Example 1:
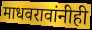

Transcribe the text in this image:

माधवरावांनीही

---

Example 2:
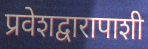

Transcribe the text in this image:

प्रवेशद्वारापाशी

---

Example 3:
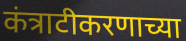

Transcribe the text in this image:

कंत्राटीकरणाच्या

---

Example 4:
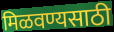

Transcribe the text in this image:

मिळवण्यसाठी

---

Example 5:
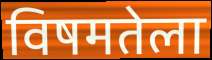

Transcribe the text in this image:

विषमतेला